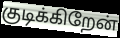
குடிக்கிறேன்